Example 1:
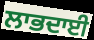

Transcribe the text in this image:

ਲਾਭਦਾਈ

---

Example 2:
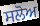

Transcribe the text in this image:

ਸਲੋਅ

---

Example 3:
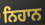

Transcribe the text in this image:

ਨਿਹਾਨ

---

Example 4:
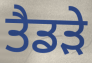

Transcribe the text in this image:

ਤੈਡੜੇ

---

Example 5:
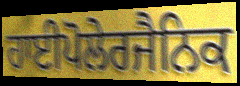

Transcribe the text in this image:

ਹਾਈਪੋਲੇਰਜੈਨਿਕ